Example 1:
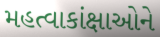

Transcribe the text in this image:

મહત્વાકાંક્ષાઓને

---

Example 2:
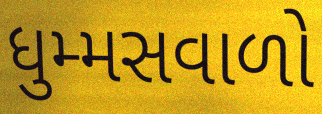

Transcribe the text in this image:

ધુમ્મસવાળો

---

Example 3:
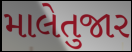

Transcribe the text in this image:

માલેતુજાર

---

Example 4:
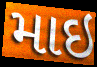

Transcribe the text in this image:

માઇ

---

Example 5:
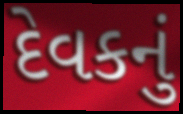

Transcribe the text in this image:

દેવકનું